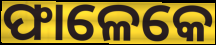
ଫାଳେକେ